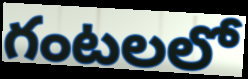
గంటలలో